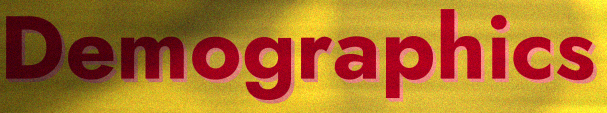
Demographics